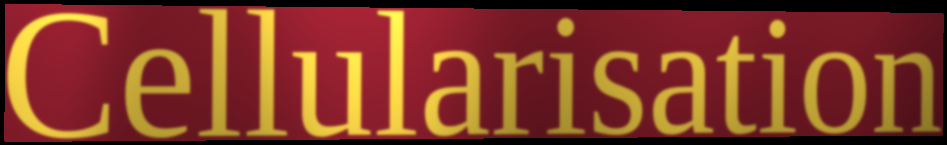
Cellularisation